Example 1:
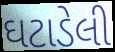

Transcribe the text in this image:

ઘટાડેલી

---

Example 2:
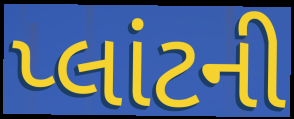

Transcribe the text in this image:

પ્લાંટની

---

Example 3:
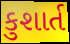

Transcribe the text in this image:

કુશાર્ત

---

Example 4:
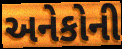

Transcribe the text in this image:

અનેકોની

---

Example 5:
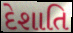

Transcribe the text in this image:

દેશાતિ